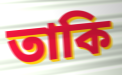
তাকি